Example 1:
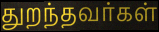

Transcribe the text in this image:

துறந்தவர்கள்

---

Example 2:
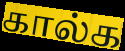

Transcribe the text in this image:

கால்க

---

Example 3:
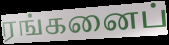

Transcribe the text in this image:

ரங்கனைப்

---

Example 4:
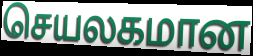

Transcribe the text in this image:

செயலகமான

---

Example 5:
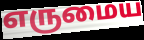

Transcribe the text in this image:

எருமைய